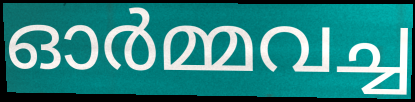
ഓർമ്മവച്ച